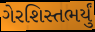
ગેરશિસ્તભર્યું